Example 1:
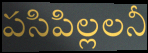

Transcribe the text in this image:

పసిపిల్లలనీ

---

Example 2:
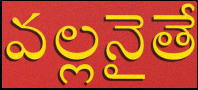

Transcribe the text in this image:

వల్లనైతే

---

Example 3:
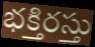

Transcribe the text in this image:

భక్తిరస్తు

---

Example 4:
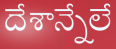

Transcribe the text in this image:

దేశాన్నేలే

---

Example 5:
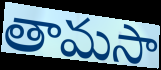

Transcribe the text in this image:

తామసా